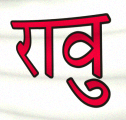
रावु